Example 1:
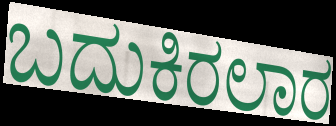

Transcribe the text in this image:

ಬದುಕಿರಲಾರ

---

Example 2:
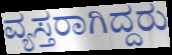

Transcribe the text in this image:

ವ್ಯಸ್ತರಾಗಿದ್ದರು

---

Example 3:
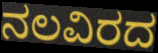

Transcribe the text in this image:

ನಲವಿರದ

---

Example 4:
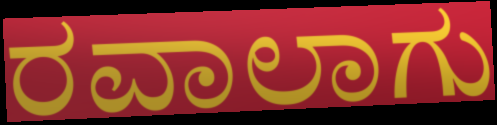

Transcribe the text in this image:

ರವಾಲಾಗು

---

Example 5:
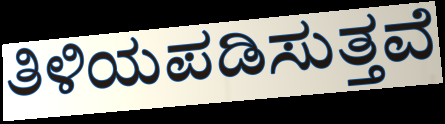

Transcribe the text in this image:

ತಿಳಿಯಪಡಿಸುತ್ತವೆ